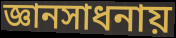
জ্ঞানসাধনায়